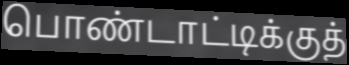
பொண்டாட்டிக்குத்